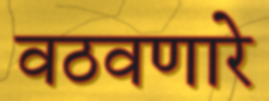
वठवणारे